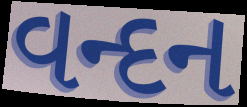
વન્દન